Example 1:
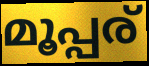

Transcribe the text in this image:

മൂപ്പര്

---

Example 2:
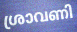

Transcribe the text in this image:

ശ്രാവണി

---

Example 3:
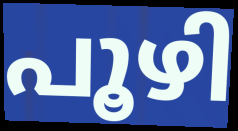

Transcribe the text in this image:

പൂഴി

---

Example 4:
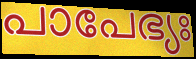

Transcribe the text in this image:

പാപേഭ്യഃ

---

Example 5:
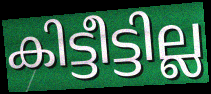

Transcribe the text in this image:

കിട്ടീട്ടില്ല